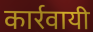
कार्रवायी